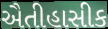
ઐતીહાસીક